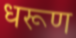
धरूण